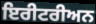
ਇਰੀਟਰੀਅਨ